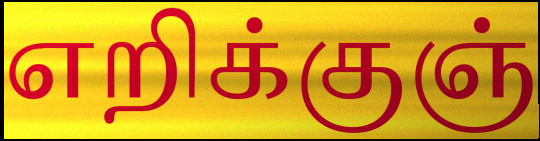
எறிக்குஞ்